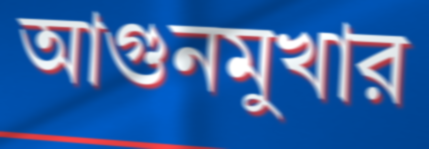
আগুনমুখার